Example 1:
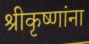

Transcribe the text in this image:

श्रीकृष्णांना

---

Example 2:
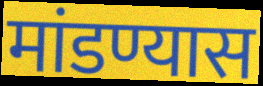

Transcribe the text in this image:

मांडण्यास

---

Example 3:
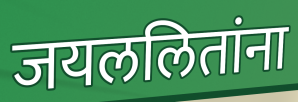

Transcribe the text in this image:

जयललितांना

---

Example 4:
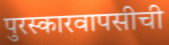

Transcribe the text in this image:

पुरस्कारवापसीची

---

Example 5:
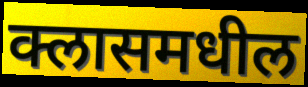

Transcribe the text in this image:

क्लासमधील